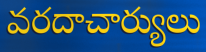
వరదాచార్యులు